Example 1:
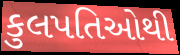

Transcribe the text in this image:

કુલપતિઓથી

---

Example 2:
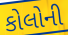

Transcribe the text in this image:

કોલોની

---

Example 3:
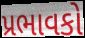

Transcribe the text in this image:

પ્રભાવકો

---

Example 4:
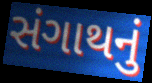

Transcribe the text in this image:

સંગાથનું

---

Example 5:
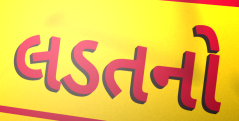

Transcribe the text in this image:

લડતનો